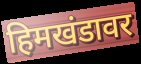
हिमखंडावर